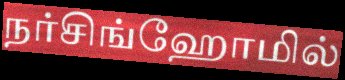
நர்சிங்ஹோமில்